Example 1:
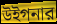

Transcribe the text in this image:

উইগনার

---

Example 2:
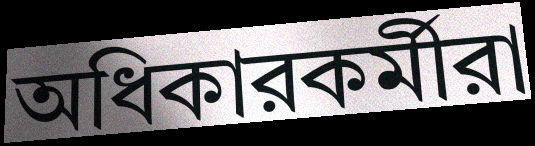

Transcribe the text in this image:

অধিকারকর্মীরা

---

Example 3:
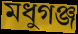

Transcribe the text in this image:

মধুগঞ্জ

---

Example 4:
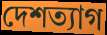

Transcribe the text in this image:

দেশত্যাগ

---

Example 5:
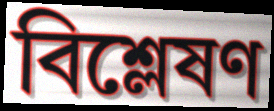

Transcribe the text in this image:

বিশ্লেষণ